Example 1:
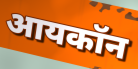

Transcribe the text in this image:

आयकॉन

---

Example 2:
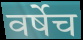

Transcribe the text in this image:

वर्षेच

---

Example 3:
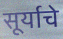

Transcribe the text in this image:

सूर्याचे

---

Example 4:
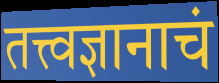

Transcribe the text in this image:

तत्त्वज्ञानाचं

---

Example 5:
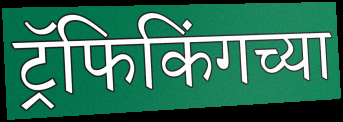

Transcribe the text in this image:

ट्रॅफिकिंगच्या